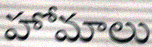
హోమాలు